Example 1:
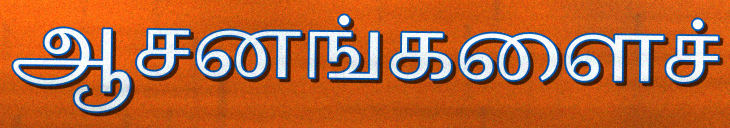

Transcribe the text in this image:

ஆசனங்களைச்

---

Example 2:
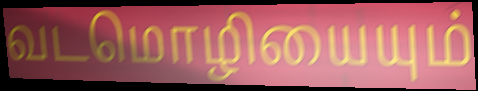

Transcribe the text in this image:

வடமொழியையும்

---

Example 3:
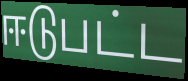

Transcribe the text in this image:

ஈடுபட்ட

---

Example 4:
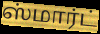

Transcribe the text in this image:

ஸ்மார்ட்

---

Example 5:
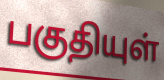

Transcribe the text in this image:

பகுதியுள்